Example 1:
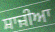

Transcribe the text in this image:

ਸ਼ਾਜ਼ੀਆ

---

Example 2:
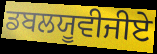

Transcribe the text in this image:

ਡਬਲਯੂਵੀਜੀਏ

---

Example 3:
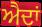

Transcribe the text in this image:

ਐਦਾਂ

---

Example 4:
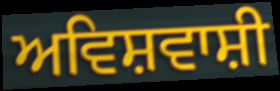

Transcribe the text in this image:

ਅਵਿਸ਼ਵਾਸ਼ੀ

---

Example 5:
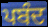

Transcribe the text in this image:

ਪਬੰਦ